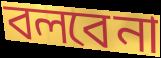
বলবেনা